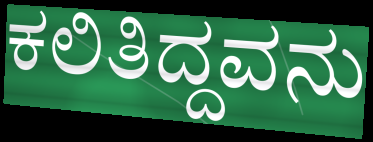
ಕಲಿತಿದ್ದವನು